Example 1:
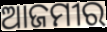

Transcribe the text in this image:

ଆଜମୀର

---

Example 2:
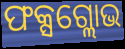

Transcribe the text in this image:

ଫକ୍ସଗ୍ଲୋଭ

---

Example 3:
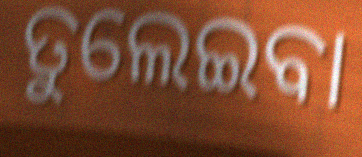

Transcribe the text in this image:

ତୁଲେଇବା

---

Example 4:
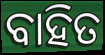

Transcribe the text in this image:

ବାହିତ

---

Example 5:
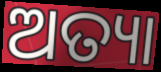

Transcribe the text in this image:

ଅତ୍ୟା